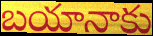
బయానాకు